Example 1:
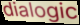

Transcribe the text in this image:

dialogic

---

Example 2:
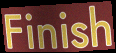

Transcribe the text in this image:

Finish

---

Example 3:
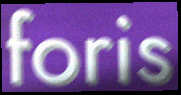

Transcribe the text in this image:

foris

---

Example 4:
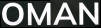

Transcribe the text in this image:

OMAN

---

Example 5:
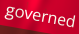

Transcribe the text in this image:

governed